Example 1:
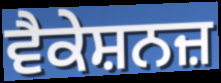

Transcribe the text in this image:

ਵੈਕੇਸ਼ਨਜ਼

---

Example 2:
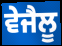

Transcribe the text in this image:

ਵੇਜੈਲੂ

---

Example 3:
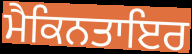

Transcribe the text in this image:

ਮੈਕਿਨਤਾਇਰ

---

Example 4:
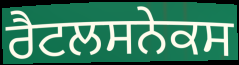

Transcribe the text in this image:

ਰੈਟਲਸਨੇਕਸ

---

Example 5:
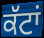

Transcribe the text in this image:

ਕੱਟਾਂ